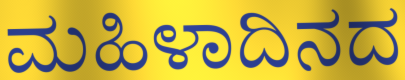
ಮಹಿಳಾದಿನದ